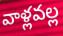
వాళ్లవల్ల